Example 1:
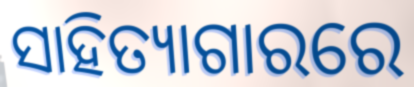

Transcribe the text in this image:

ସାହିତ୍ୟାଗାରରେ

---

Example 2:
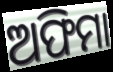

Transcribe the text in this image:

ଅଫିମା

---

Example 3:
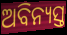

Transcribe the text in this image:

ଅବିନ୍ୟସ୍ତ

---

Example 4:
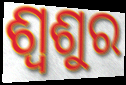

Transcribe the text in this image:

ଶ୍ଵଶୁର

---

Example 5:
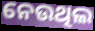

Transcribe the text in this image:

ନେଉଥିଲ